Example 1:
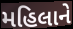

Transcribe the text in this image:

મહિલાને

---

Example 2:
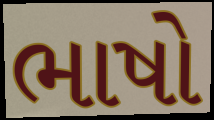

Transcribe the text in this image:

ભાષો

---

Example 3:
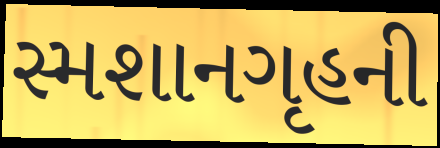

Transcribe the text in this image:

સ્મશાનગૃહની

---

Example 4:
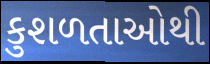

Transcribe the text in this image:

કુશળતાઓથી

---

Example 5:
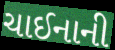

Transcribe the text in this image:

ચાઈનાની